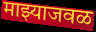
माझ्याजवळ